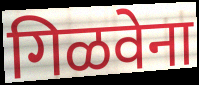
गिळवेना